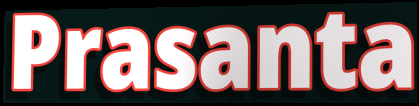
Prasanta